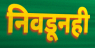
निवडूनही